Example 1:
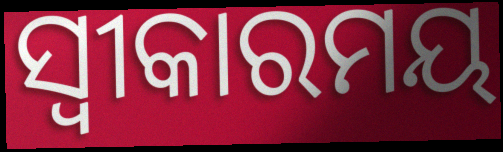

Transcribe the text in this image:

ସ୍ଵୀକାରମୟ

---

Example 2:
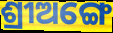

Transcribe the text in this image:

ଶ୍ରୀଅଙ୍ଗେ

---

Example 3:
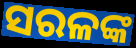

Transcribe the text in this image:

ସରଳଙ୍କ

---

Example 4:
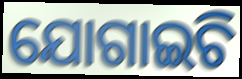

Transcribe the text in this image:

ଯୋଗାଇଚି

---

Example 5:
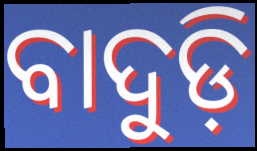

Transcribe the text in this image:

ବାଦୁଡ଼ି